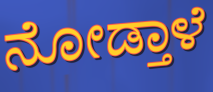
ನೋಡ್ತಾಳೆ